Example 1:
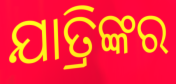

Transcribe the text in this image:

ଯାତ୍ରିଙ୍କର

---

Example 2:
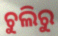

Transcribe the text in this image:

ଚୁଲିରୁ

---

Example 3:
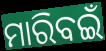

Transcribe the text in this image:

ମାରିବଇଁ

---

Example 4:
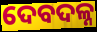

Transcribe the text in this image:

ଦେବଦଳ୍ନ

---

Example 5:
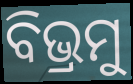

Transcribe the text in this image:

ବିଭ୍ରମୁ